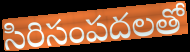
సిరిసంపదలతో